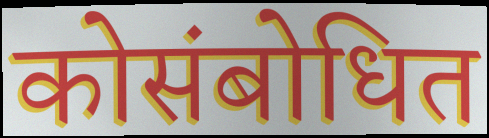
कोसंबोधित